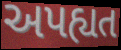
અપહ્યત